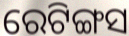
ରେଟିଙ୍ଗସ